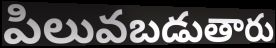
పిలువబడుతారు